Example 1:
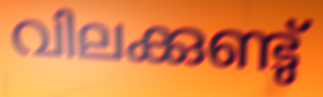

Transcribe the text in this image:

വിലക്കുണ്ടു്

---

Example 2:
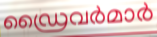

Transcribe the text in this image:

ഡ്രൈവർമാർ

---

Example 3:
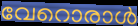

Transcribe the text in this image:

വേറൊരാൾ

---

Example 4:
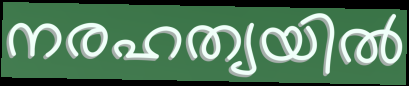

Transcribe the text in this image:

നരഹത്യയിൽ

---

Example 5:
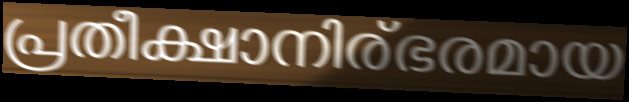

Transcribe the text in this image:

പ്രതീക്ഷാനിര്ഭരമായ